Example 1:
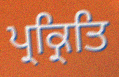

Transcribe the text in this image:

ਪ੍ਰਕ੍ਰਿਤਿ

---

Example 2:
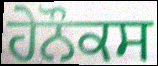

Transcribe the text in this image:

ਹੇਨੌਕਸ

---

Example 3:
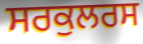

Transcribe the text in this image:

ਸਰਕੁਲਰਸ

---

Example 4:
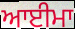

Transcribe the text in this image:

ਆਈਮਾ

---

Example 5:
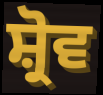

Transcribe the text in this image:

ਸ਼੍ਰੋਵ